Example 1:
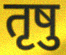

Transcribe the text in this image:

तृषु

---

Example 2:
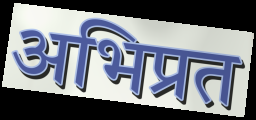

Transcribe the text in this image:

अभिप्रत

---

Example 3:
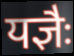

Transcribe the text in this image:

यज्ञैः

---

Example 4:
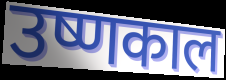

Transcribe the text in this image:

उष्णकाल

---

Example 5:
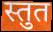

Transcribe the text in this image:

स्तुत